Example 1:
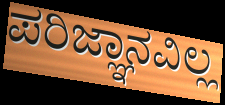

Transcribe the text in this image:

ಪರಿಜ್ಞಾನವಿಲ್ಲ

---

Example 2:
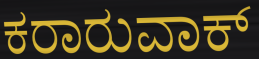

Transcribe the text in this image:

ಕರಾರುವಾಕ್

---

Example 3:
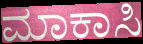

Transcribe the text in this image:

ಮಾಕಾಸಿ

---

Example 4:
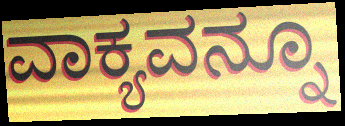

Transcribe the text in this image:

ವಾಕ್ಯವನ್ನೂ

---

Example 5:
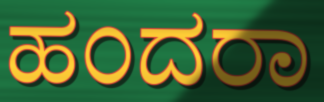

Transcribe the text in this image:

ಹಂದರಾ